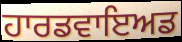
ਹਾਰਡਵਾਇਅਡ